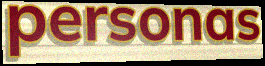
personas